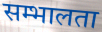
सम्भालता